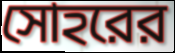
সোহরের